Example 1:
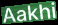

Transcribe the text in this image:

Aakhi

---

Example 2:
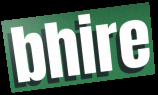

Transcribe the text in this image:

bhire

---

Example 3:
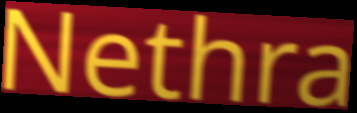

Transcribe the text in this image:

Nethra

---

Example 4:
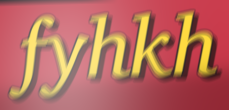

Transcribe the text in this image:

fyhkh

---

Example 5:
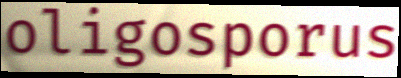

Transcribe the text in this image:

oligosporus